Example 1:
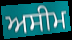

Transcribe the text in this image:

ਅਸੀਮ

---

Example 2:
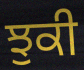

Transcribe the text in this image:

ਝੁਕੀ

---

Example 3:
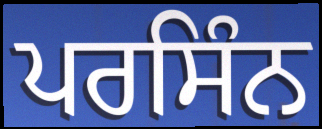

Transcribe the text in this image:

ਪਰਸਿੰਨ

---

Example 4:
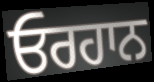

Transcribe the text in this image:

ਓਰਹਾਨ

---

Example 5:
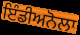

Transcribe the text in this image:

ਇੰਡੀਅਨੋਲਾ